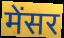
मेंसर